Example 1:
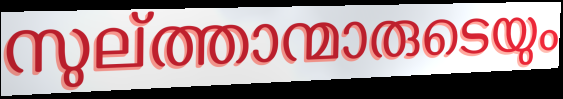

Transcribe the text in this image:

സുല്ത്താന്മാരുടെയും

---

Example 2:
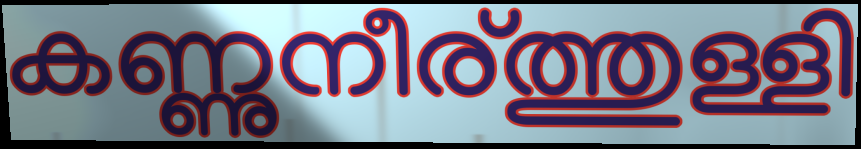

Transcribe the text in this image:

കണ്ണുനീര്ത്തുള്ളി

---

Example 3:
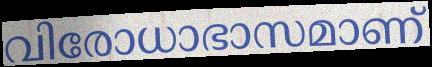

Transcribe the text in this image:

വിരോധാഭാസമാണ്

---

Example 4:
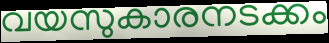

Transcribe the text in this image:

വയസുകാരനടക്കം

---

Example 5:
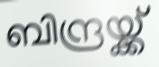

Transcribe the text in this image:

ബിന്ദ്രയ്ക്ക്